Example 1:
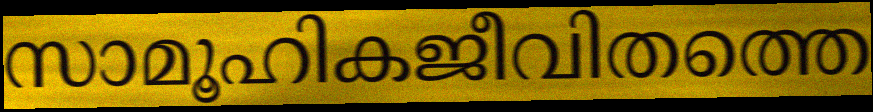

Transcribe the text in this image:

സാമൂഹികജീവിതത്തെ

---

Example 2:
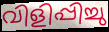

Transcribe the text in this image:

വിളിപ്പിച്ചു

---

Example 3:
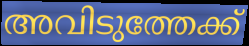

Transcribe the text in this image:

അവിടുത്തേക്ക്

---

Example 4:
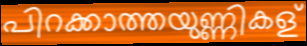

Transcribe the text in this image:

പിറക്കാത്തയുണ്ണികള്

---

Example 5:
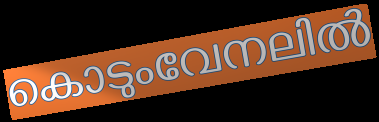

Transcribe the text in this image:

കൊടുംവേനലിൽ